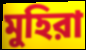
মুহিরা